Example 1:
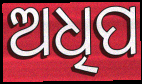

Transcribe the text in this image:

ଅଧିପ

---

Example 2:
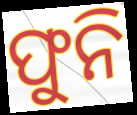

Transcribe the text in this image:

ଫୁନି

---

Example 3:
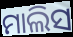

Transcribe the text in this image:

ମାଲିସ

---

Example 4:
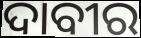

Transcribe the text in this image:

ଦାବୀର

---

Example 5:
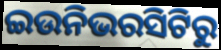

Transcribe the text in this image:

ଇଉନିଭରସିଟିରୁ